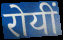
रोयीं